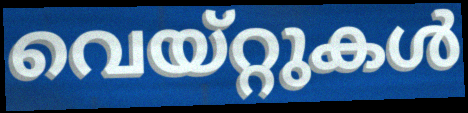
വെയ്റ്റുകൾ